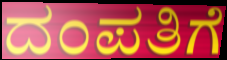
ದಂಪತಿಗೆ